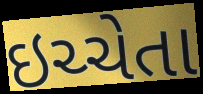
ઇચ્ચેતા